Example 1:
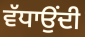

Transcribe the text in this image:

ਵੱਧਾਉਂਦੀ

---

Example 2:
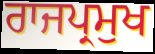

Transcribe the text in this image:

ਰਾਜਪ੍ਰਮੁਖ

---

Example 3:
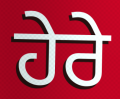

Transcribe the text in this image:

ਹੇਰੇ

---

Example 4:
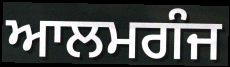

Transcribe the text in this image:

ਆਲਮਗੰਜ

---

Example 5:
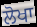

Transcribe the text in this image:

ਲੋਖਾ